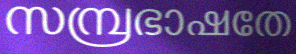
സമ്പ്രഭാഷതേ